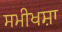
ਸਮੀਖਸ਼ਾ